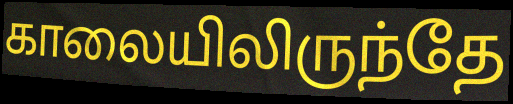
காலையிலிருந்தே